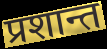
प्रशान्त